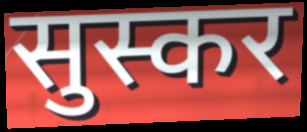
सुस्कर